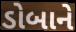
ડોબાને